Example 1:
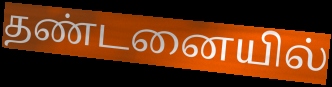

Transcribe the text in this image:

தண்டனையில்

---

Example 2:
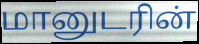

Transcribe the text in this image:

மானுடரின்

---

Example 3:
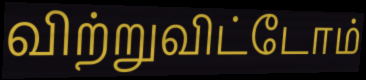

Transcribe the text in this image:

விற்றுவிட்டோம்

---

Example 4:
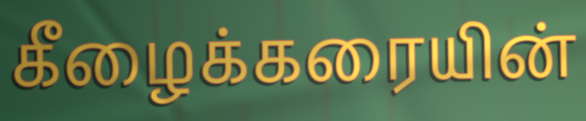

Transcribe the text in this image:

கீழைக்கரையின்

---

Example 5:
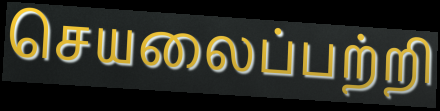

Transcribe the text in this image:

செயலைப்பற்றி